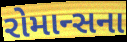
રોમાન્સના